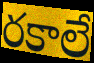
రకాలే